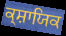
ਕ੍ਸ਼ਾਯਿਕ